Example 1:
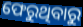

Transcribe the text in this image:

ଫେରୁଥିବାରୁ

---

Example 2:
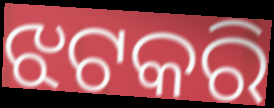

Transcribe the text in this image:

ଝଟକରି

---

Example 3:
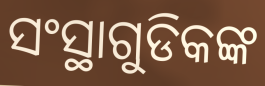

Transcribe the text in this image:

ସଂସ୍ଥାଗୁଡିକଙ୍କ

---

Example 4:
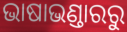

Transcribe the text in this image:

ଭାଷାଭଣ୍ଡାରରୁ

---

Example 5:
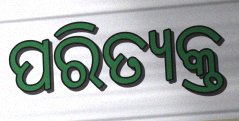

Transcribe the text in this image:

ପରିତ୍ଯକ୍ତ